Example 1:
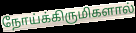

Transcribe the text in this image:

நோய்க்கிருமிகளால்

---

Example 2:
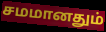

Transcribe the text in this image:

சமமானதும்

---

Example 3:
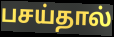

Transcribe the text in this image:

பசய்தால்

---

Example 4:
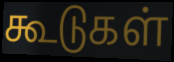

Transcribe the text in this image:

கூடுகள்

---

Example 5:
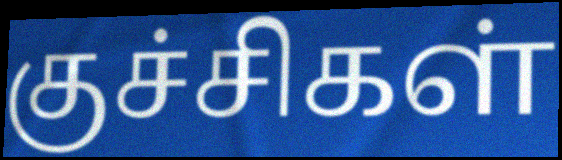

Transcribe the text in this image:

குச்சிகள்